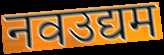
नवउद्यम